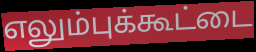
எலும்புக்கூட்டை